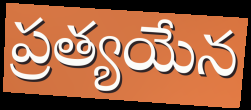
ప్రత్యయేన